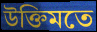
উক্তিমতে